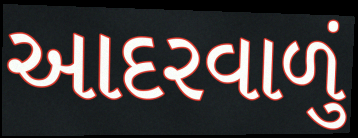
આદરવાળું